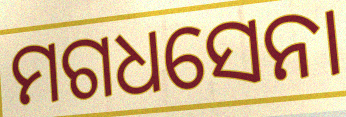
ମଗଧସେନା